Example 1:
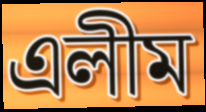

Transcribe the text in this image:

এলীম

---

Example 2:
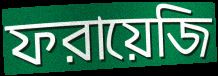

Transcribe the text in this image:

ফরায়েজি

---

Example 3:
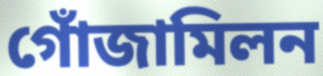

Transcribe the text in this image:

গোঁজামিলন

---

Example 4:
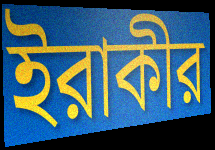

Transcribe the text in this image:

ইরাকীর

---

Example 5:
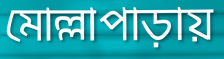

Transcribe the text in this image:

মোল্লাপাড়ায়